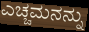
ಎಚ್ಚಮನನ್ನು